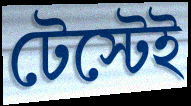
টেস্টেই